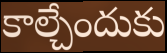
కాల్చేందుకు